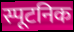
स्पूटनिक